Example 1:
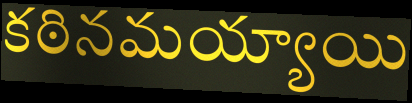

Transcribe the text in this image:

కఠినమయ్యాయి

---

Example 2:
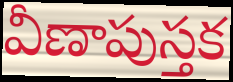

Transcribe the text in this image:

వీణాపుస్తక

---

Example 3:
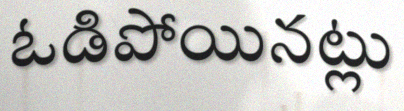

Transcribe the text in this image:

ఓడిపోయినట్లు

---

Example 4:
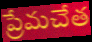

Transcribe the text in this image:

ప్రేమచేత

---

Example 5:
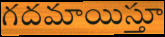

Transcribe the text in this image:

గదమాయిస్తూ